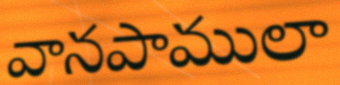
వానపాములా